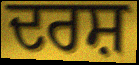
ਦਰਸ਼